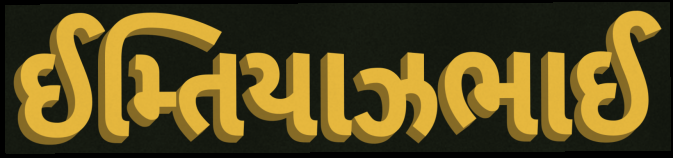
ઈમ્તિયાઝભાઈ